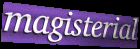
magisterial